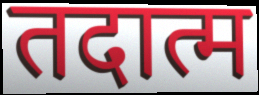
तदात्म